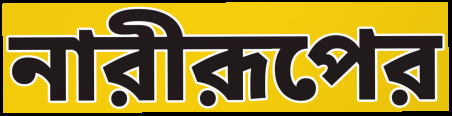
নারীরূপের